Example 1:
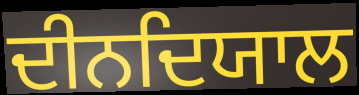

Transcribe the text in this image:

ਦੀਨਦਿਯਾਲ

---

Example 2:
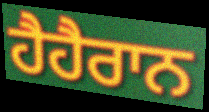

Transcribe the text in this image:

ਹੈਹੈਰਾਨ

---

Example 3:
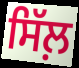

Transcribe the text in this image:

ਸਿੱਲ਼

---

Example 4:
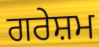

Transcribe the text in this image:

ਗਰੇਸ਼ਮ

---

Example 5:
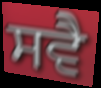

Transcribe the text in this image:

ਸਵੈ